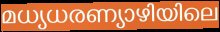
മധ്യധരണ്യാഴിയിലെ